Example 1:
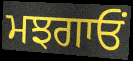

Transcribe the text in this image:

ਮਝਗਾਓਂ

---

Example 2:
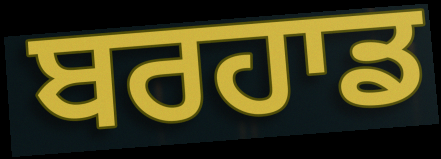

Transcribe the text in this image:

ਬਰਹਾਡ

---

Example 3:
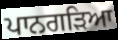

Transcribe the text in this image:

ਪਾਨਗੜਿਆ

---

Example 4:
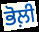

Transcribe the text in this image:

ਭੋਲ਼ੀ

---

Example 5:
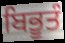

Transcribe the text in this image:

ਬਿਭੂਤੰ